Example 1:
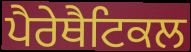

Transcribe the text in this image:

ਪੈਰੇਥੈਟਿਕਲ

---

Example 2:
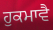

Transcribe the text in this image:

ਹੁਕਮਾਵੈ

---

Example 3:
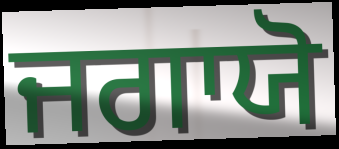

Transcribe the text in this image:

ਜਗਾਯੋ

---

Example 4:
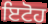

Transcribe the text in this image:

ਇਟੋਹ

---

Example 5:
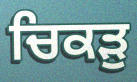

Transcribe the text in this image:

ਚਿਕੜੁ